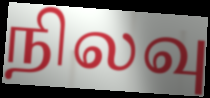
நிலவு